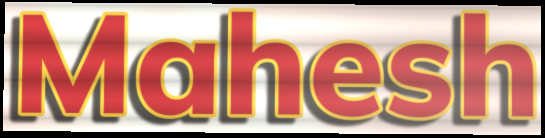
Mahesh